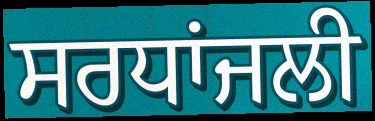
ਸਰਧਾਂਜਲੀ